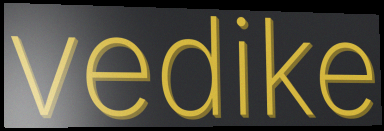
vedike